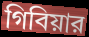
গিবিয়ার